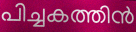
പിച്ചകത്തിൻ